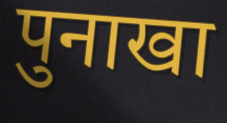
पुनाखा